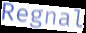
Regnal